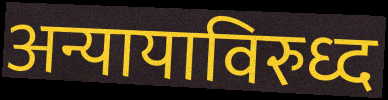
अन्यायाविरुध्द